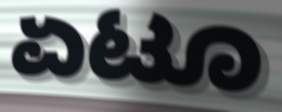
ಏಟೂ